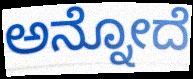
ಅನ್ನೋದೆ